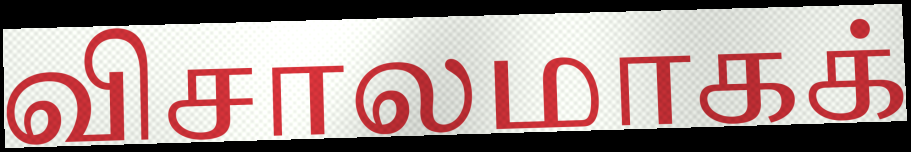
விசாலமாகக்